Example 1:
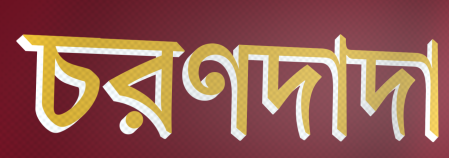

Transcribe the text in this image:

চরণদাদা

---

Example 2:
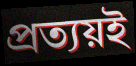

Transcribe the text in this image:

প্রত্যয়ই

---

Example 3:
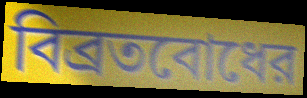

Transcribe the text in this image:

বিব্রতবোধের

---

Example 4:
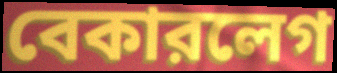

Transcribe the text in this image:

বেকারলেগ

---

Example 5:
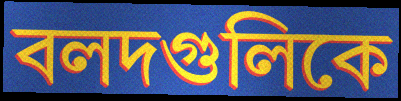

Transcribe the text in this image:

বলদগুলিকে